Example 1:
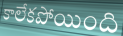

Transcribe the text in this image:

కాలేకపోయింది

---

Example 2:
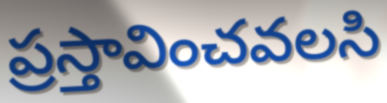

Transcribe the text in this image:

ప్రస్తావించవలసి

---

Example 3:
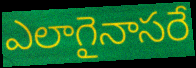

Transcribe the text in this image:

ఎలాగైనాసరే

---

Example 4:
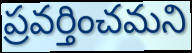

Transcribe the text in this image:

ప్రవర్తించమని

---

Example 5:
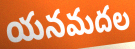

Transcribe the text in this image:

యనమదల